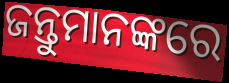
ଜନ୍ତୁମାନଙ୍କରେ